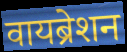
वायब्रेशन